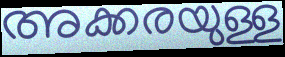
അക്കരയുള്ള